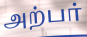
அற்பர்